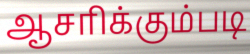
ஆசரிக்கும்படி